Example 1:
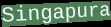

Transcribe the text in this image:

Singapura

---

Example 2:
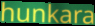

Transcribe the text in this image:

hunkara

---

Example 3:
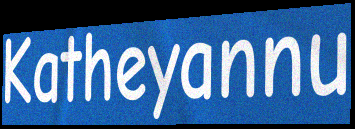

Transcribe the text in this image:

Katheyannu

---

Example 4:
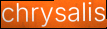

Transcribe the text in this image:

chrysalis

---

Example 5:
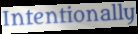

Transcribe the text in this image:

Intentionally